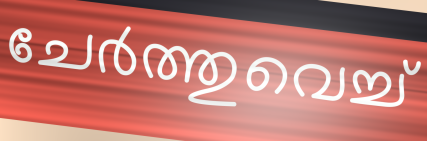
ചേർത്തുവെച്ച്